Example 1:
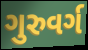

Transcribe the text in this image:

ગુરુવર્ગ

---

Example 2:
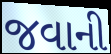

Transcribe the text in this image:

જવાની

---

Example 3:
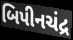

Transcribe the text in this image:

બિપીનચંદ્ર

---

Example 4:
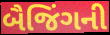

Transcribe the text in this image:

બૈજિંગની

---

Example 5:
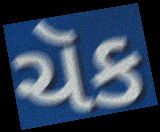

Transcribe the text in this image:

ચૅક